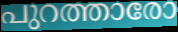
പുറത്താരോ